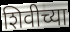
शिवीच्या